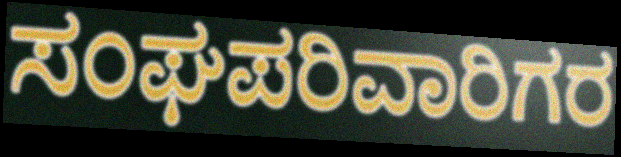
ಸಂಘಪರಿವಾರಿಗರ